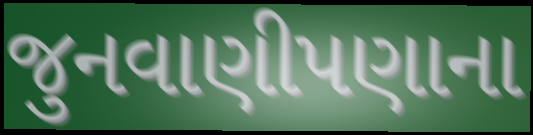
જુનવાણીપણાના